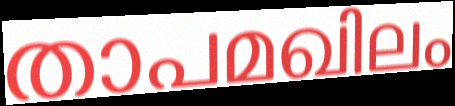
താപമഖിലം